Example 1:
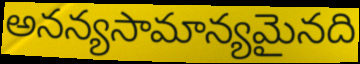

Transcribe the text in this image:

అనన్యసామాన్యమైనది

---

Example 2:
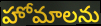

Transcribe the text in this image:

హోమాలను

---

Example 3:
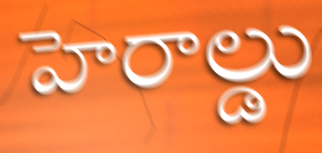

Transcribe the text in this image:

హెరాల్డు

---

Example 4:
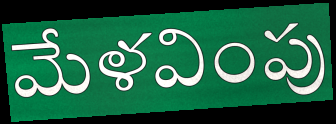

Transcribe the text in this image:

మేళవింపు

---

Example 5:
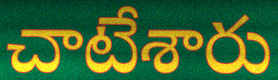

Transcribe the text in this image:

చాటేశారు